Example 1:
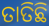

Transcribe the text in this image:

ତାତିଛି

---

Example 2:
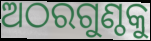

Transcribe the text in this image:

ଅଠରଗୁଣ୍ଠକୁ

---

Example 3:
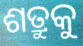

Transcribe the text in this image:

ଶତ୍ରୁକୁ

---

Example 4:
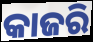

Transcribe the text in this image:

କାଜରି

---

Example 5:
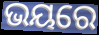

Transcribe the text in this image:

ଭୟରେ